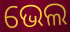
ଭେଲ